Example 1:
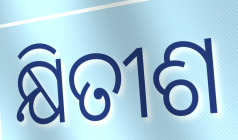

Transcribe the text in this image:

କ୍ଷିତୀଶ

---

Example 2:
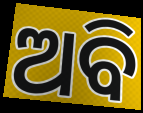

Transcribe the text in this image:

ଅବି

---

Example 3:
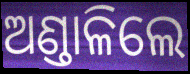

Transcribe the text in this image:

ଅଣ୍ଡାଳିଲେ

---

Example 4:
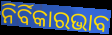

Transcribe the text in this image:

ନିର୍ବିକାରଭାବ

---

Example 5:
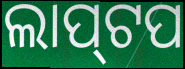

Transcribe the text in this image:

ଲାପ୍‌ଟପ